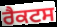
ਰੈਕਟਸ